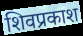
शिवप्रकाश